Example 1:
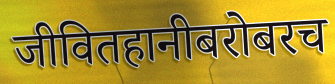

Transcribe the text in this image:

जीवितहानीबरोबरच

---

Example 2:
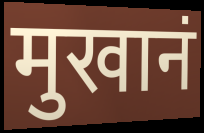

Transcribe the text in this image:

मुखानं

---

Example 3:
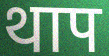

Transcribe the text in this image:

थाप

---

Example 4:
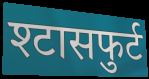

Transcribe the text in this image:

श्टासफुर्ट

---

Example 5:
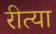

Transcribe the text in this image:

रीत्या